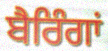
ਬੈਰਿੰਗਾਂ